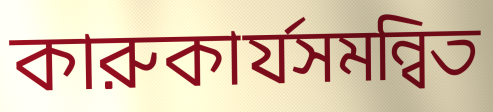
কারুকার্যসমন্বিত